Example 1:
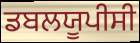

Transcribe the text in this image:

ਡਬਲਯੂਪੀਸੀ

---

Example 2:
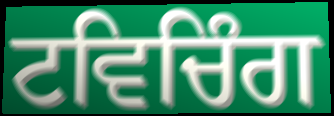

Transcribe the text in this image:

ਟਵਿਚਿੰਗ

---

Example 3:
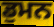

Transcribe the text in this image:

ਡੁਮਨ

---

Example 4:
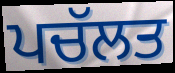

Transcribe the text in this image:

ਪਚੱਲਤ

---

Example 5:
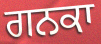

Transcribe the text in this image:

ਗਨਕਾ